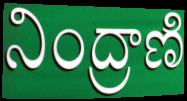
నింద్రాణి